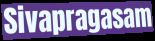
Sivapragasam